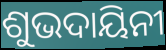
ଶୁଭଦାୟିନୀ